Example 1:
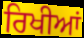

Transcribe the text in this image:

ਰਿਖੀਆਂ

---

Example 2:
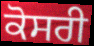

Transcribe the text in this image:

ਕੋਸਰੀ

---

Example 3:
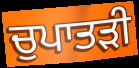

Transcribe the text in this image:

ਚੁਪਾਤੜੀ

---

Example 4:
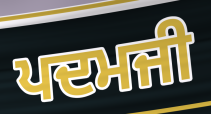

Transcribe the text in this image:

ਪਦਮਜੀ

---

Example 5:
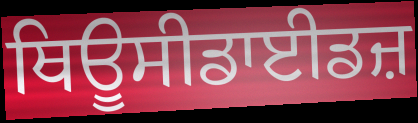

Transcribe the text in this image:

ਥਿਊਸੀਡਾਈਡਜ਼